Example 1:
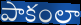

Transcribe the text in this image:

పాకంలా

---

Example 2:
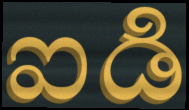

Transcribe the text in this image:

ఐడి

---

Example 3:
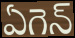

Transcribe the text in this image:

ఏగెన్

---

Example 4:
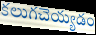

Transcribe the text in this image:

కలుగచెయ్యడం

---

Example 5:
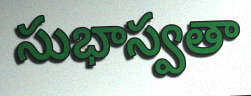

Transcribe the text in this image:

సుభాస్వతా